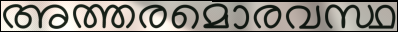
അത്തരമൊരവസ്ഥ